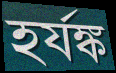
হর্যঙ্ক